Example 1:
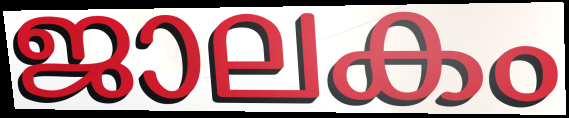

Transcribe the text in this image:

ജാലകം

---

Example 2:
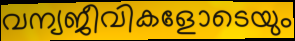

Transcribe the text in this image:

വന്യജീവികളോടെയും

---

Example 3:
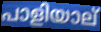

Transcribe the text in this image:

പാളിയാല്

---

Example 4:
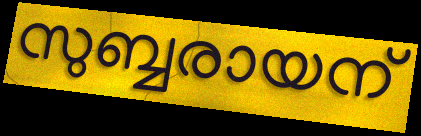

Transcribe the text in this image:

സുബ്ബരായന്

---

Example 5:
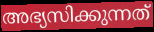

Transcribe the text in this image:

അഭ്യസിക്കുന്നത്